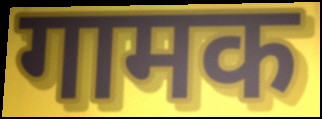
गामक